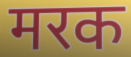
मरक